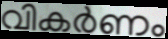
വികർണം